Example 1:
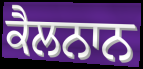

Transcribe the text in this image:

ਕੈਲਨਾਨ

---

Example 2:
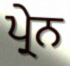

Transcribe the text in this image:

ਪ੍ਰੇਨ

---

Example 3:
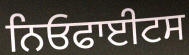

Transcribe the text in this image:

ਨਿਓਫਾਈਟਸ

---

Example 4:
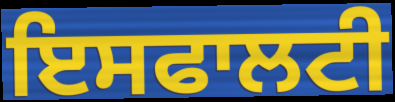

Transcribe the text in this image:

ਇਸਫਾਲਟੀ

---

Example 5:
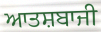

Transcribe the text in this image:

ਆਤਸ਼ਬਾਜੀ